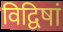
विद्विषां